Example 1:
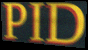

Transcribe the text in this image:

PID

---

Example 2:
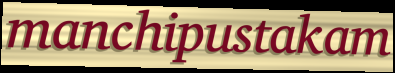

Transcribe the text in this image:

manchipustakam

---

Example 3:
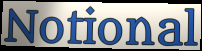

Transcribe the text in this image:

Notional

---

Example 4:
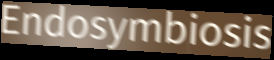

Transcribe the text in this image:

Endosymbiosis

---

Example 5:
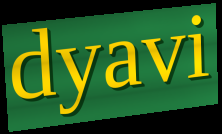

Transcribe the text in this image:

dyavi